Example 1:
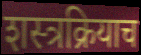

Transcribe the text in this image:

शस्त्रक्रियाच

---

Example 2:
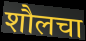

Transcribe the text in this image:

शौलचा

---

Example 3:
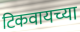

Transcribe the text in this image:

टिकवायच्या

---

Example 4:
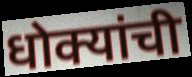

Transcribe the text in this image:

धोक्यांची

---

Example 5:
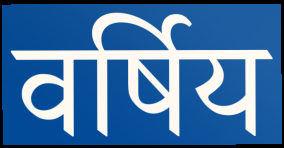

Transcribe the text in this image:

वर्षिय